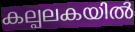
കല്പലകയിൽ